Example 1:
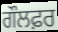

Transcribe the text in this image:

ਗੌਲਫ਼ਰ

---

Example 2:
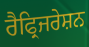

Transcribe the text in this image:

ਰੈਫ੍ਰਿਜਰੇਸ਼ਨ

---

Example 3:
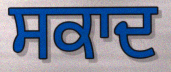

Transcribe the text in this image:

ਸਕਾਦ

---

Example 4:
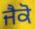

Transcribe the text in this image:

ਜੈਕੋ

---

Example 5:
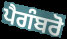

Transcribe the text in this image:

ਪੈਗੰਬਰੋ